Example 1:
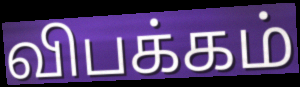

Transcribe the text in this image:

விபக்கம்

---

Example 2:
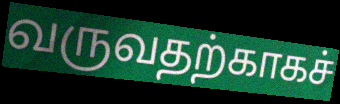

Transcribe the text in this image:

வருவதற்காகச்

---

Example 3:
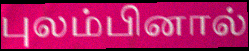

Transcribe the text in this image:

புலம்பினால்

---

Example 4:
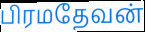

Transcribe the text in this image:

பிரமதேவன்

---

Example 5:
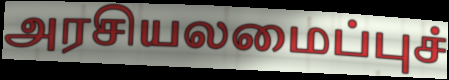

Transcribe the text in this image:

அரசியலமைப்புச்